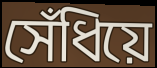
সেঁধিয়ে